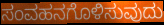
ಸಂವಹನಗೊಳಿಸುವುದು